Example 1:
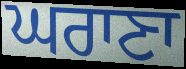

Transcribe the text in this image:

ਘਰਾਣਾ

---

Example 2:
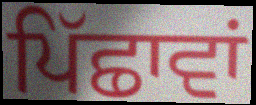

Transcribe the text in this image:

ਪਿੱਛਾਵਾਂ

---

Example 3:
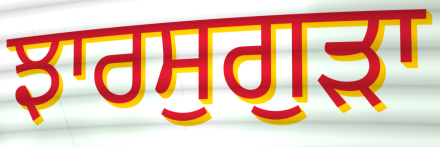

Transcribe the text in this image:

ਝਾਰਸੁਗੁੜਾ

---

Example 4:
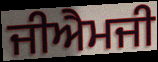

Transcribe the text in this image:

ਜੀਐਮਜੀ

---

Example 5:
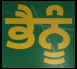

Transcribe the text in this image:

ਭੈਨੂੰ